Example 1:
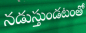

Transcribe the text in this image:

నడుస్తుండటంతో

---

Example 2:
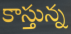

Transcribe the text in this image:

కాస్తున్న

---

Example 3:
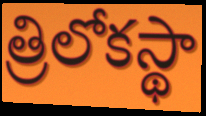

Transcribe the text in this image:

త్రిలోకస్థా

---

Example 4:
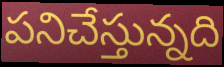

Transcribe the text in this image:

పనిచేస్తున్నది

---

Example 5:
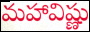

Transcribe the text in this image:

మహావిష్ణు